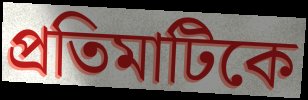
প্রতিমাটিকে